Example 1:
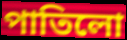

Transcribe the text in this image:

পাতিলো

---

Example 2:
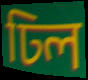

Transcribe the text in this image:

ঢিল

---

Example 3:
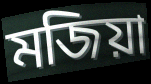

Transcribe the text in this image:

মজিয়া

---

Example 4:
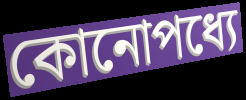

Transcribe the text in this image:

কোনোপধ্যে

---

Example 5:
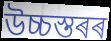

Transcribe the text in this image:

উচ্চস্তৰৰ